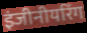
इंजीनीयरिंग